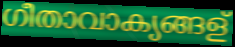
ഗീതാവാക്യങ്ങള്